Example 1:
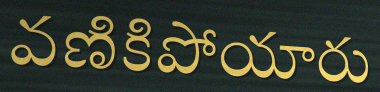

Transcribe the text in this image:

వణికిపోయారు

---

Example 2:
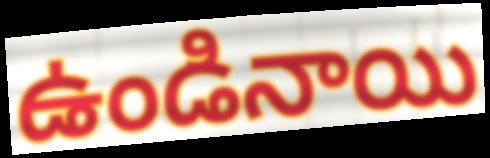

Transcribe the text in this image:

ఉండినాయి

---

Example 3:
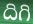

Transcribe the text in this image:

దిగి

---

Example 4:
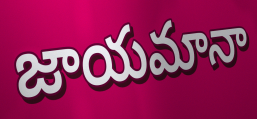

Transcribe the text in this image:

జాయమానా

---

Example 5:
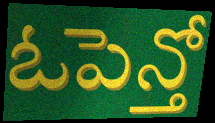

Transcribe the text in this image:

ఓపెన్తో